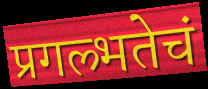
प्रगल्भतेचं